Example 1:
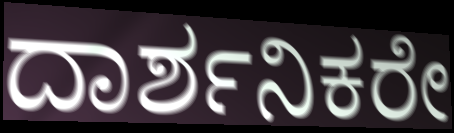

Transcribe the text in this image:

ದಾರ್ಶನಿಕರೇ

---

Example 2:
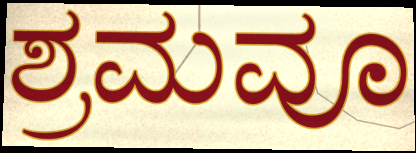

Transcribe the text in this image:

ಶ್ರಮವೂ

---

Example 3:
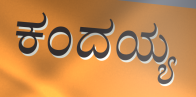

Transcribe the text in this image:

ಕಂದಯ್ಯ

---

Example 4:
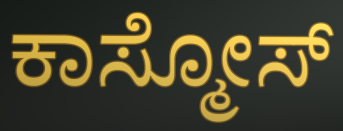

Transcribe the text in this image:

ಕಾಸ್ಮೋಸ್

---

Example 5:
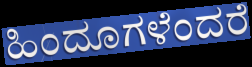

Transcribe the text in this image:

ಹಿಂದೂಗಳೆಂದರೆ